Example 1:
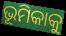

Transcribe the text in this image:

ଭୂମିକାକୁ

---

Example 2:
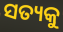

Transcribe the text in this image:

ସତ୍ୟକୁ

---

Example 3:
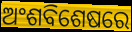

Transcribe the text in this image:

ଅଂଶବିଶେଷରେ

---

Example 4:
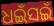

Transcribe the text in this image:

ଧଇଁସଇଁ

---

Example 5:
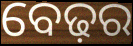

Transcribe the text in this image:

ବେଢ଼ର